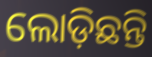
ଲୋଡ଼ିଛନ୍ତି